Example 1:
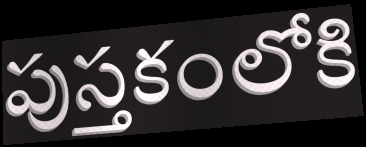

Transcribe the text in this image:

పుస్తకంలోకి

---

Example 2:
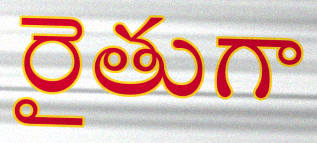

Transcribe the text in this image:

రైతుగా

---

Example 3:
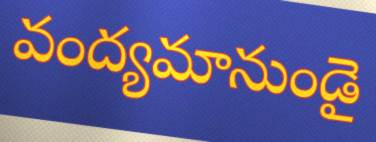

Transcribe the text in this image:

వంద్యమానుండై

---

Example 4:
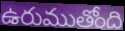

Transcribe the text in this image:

ఉరుముతోంది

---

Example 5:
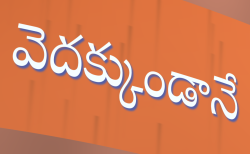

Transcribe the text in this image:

వెదక్కుండానే